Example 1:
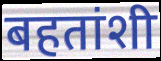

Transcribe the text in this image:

बहतांशी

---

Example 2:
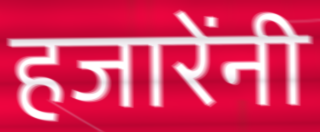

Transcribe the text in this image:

हजारेंनी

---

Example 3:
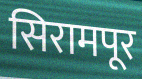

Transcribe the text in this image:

सिरामपूर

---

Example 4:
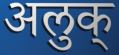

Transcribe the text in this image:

अलुक्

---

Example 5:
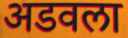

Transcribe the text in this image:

अडवला